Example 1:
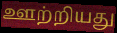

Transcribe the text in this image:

ஊற்றியது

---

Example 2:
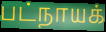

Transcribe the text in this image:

பட்நாயக்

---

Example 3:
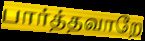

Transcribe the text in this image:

பார்த்தவாறே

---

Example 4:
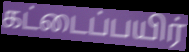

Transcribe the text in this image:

கட்டைப்பயிர்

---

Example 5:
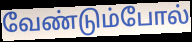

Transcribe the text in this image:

வேண்டும்போல்